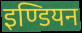
इण्डियन